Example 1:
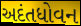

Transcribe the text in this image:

અદંતધોવન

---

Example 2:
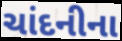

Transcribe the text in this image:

ચાંદનીના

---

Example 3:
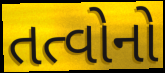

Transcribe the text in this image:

તત્વોનો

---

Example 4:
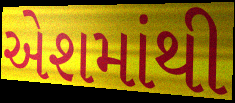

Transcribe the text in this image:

એશમાંથી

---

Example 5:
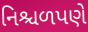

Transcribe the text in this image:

નિશ્ચળપણે